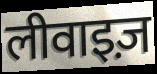
लीवाइज़